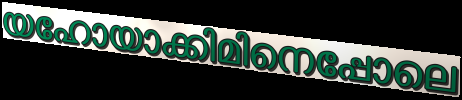
യഹോയാക്കിമിനെപ്പോലെ